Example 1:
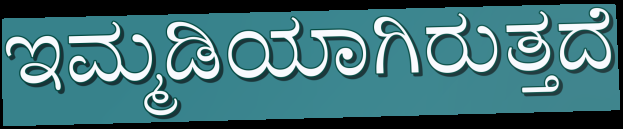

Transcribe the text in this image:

ಇಮ್ಮಡಿಯಾಗಿರುತ್ತದೆ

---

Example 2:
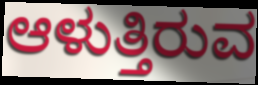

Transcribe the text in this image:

ಆಳುತ್ತಿರುವ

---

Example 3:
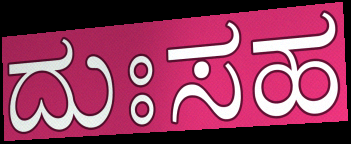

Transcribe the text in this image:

ದುಃಸಹ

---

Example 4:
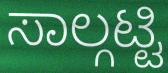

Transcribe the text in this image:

ಸಾಲ್ಗಟ್ಟಿ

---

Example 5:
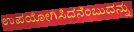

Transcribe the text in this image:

ಉಪಯೋಗಿಸಿದನೆಂಬುದನ್ನು